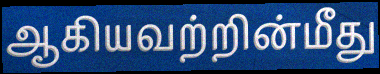
ஆகியவற்றின்மீது